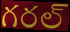
గరల్